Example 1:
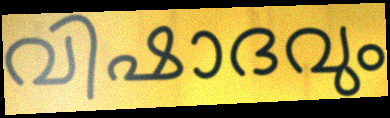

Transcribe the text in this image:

വിഷാദവും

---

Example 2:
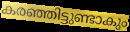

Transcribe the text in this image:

കരഞ്ഞിട്ടുണ്ടാകും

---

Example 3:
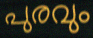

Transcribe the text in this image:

പുരവും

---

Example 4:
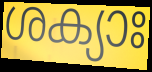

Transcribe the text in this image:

ശക്യാഃ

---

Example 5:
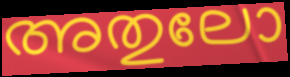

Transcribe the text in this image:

അതുലോ